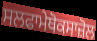
ਸਲਫਾਮੇਥੋਕਸਾਜ਼ੋਲ